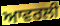
ਆਵਰਲੀ